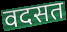
वदसत